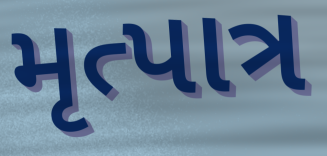
મૃત્પાત્ર